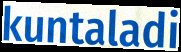
kuntaladi